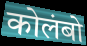
कोलंबो